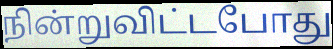
நின்றுவிட்டபோது